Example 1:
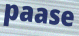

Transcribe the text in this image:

paase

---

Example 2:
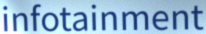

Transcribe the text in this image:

infotainment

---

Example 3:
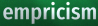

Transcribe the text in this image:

empricism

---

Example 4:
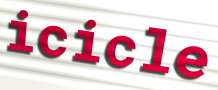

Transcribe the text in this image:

icicle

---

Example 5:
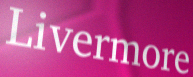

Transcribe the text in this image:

Livermore